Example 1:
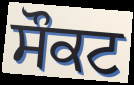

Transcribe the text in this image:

ਸੌਕਟ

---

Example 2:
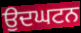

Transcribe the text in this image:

ਉਦਘਟਨ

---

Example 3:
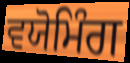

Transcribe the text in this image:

ਵਯੋਮਿੰਗ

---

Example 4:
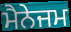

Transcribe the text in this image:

ਮੈਨੇਜਮ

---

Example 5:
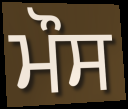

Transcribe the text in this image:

ਮੌਸ